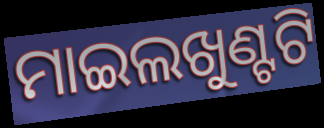
ମାଇଲଖୁଣ୍ଟଟି